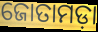
ଜୋତାମଡ଼ା